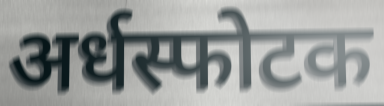
अर्धस्फोटक